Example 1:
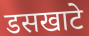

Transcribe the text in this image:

डसखाटे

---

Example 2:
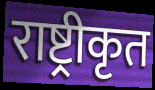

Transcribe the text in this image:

राष्ट्रीकृत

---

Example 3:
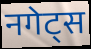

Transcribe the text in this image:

नगेट्स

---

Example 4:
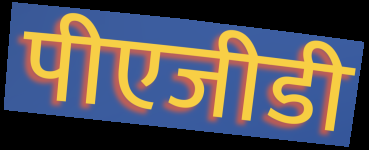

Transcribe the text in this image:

पीएजीडी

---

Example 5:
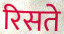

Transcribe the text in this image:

रिसते